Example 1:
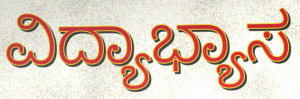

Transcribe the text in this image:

ವಿದ್ಯಾಭ್ಯಾಸ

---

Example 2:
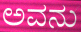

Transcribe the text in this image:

ಅವನು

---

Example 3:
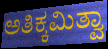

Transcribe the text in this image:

ಅತಿಕ್ಕಮಿತ್ವಾ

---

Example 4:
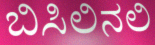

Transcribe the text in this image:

ಬಿಸಿಲಿನಲಿ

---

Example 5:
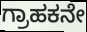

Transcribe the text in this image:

ಗ್ರಾಹಕನೇ